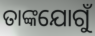
ତାଙ୍କଯୋଗୁଁ